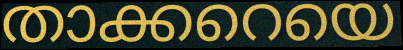
താക്കറെയെ